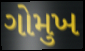
ગોમુખ